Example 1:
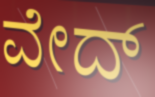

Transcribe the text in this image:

ವೇದ್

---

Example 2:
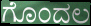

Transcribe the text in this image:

ಗೊಂದಲ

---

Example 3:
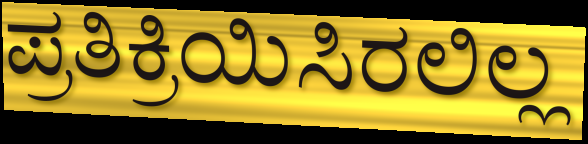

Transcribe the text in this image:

ಪ್ರತಿಕ್ರಿಯಿಸಿರಲಿಲ್ಲ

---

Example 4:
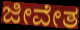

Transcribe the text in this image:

ಜೀವೇತ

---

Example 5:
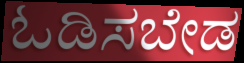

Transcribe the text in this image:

ಓಡಿಸಬೇಡ